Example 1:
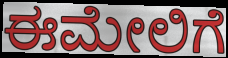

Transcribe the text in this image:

ಈಮೇಲಿಗೆ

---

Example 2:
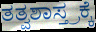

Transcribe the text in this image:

ತತ್ವಶಾಸ್ತ್ರಕ್ಕೆ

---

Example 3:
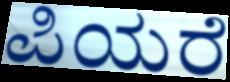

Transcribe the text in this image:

ಪಿಯರೆ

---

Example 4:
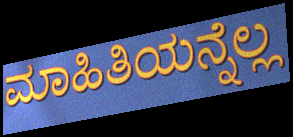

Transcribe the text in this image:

ಮಾಹಿತಿಯನ್ನೆಲ್ಲ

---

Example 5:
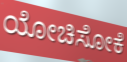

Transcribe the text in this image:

ಯೋಚಿಸೋಕೆ